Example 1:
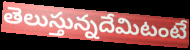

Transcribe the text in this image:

తెలుస్తున్నదేమిటంటే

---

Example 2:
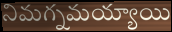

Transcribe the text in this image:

నిమగ్నమయ్యాయి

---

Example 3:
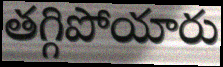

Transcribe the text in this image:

తగ్గిపోయారు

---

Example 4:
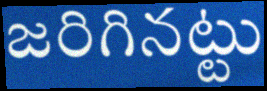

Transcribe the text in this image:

జరిగినట్టు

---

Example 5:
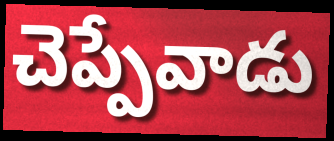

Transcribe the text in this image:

చెప్పేవాడు